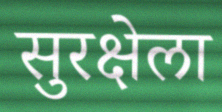
सुरक्षेला